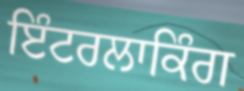
ਇੰਟਰਲਾਕਿੰਗ